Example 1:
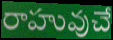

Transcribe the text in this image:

రాహువుచే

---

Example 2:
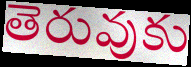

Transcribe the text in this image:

తెరువుకు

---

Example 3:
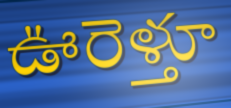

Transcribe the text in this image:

ఊరెళ్తూ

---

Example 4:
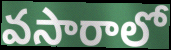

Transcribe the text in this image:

వసారాలో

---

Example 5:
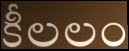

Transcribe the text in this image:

కీలలం